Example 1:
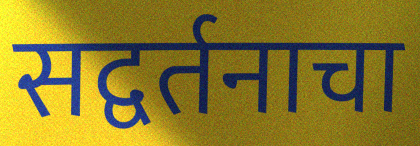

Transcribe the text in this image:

सद्वर्तनाचा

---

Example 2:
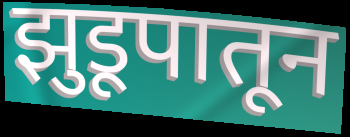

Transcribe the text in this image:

झुडूपातून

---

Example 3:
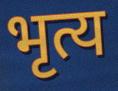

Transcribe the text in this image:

भृत्य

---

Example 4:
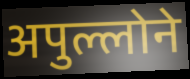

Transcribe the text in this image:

अपुल्लोने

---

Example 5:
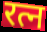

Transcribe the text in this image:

रत्न